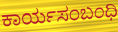
ಕಾರ್ಯಸಂಬಂಧಿ